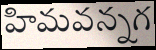
హిమవన్నగ